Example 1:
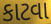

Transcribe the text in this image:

કાટવા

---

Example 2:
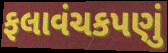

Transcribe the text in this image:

ફલાવંચકપણું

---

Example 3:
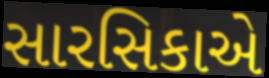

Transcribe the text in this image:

સારસિકાએ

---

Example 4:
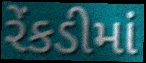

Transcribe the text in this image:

રેંકડીમાં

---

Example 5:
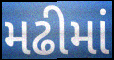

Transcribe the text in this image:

મઢીમાં